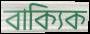
বাক্যিক